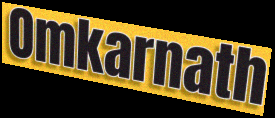
Omkarnath